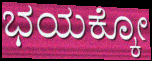
ಭಯಕ್ಕೋ